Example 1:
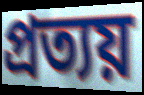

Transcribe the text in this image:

প্ৰত্যয়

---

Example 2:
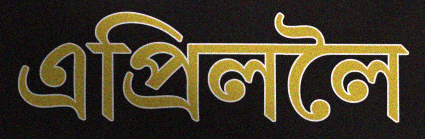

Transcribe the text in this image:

এপ্ৰিললৈ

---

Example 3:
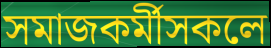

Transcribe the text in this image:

সমাজকৰ্মীসকলে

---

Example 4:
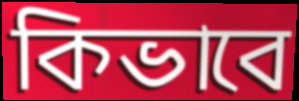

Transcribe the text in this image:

কিভাবে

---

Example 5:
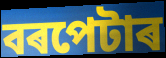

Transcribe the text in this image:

বৰপেটাৰ